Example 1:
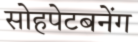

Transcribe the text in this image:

सोहपेटबनेंग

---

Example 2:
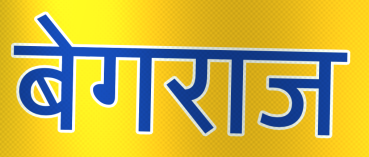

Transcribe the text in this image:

बेगराज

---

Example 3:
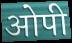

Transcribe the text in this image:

ओपी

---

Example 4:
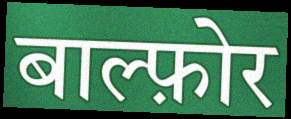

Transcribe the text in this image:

बाल्फ़ोर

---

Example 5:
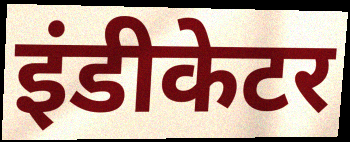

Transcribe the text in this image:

इंडीकेटर